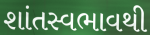
શાંતસ્વભાવથી